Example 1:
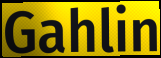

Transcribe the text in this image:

Gahlin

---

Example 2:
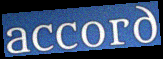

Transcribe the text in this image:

accord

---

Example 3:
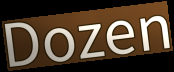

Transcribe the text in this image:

Dozen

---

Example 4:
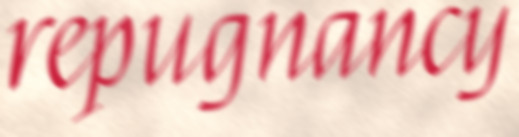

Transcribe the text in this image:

repugnancy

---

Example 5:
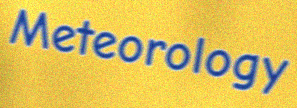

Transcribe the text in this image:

Meteorology